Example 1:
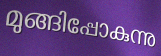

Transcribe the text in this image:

മുങ്ങിപ്പോകുന്നു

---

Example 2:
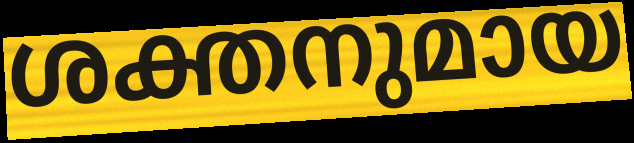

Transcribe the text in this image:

ശക്തനുമായ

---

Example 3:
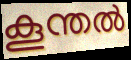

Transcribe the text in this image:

കൂന്തൽ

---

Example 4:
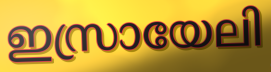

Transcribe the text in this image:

ഇസ്രായേലി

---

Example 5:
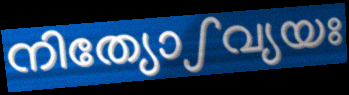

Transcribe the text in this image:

നിത്യോഽവ്യയഃ